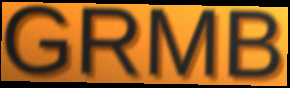
GRMB